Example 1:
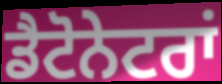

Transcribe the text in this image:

ਡੈਟੋਨੇਟਰਾਂ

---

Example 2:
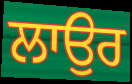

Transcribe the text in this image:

ਲਾਉਰ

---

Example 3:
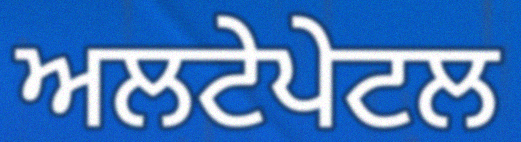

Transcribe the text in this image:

ਅਲਟੇਪੇਟਲ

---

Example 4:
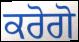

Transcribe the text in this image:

ਕਰੋਗੋ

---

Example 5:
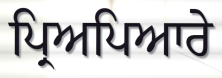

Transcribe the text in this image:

ਪ੍ਰਿਅਪਿਆਰੇ